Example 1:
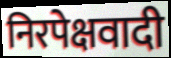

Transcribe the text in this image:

निरपेक्षवादी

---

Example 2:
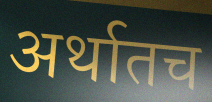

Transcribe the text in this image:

अर्थातच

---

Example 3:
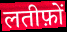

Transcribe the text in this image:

लतीफ़ों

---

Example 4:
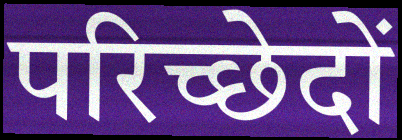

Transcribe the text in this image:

परिच्छेदों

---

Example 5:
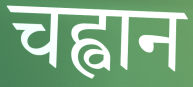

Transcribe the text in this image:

चह्वान